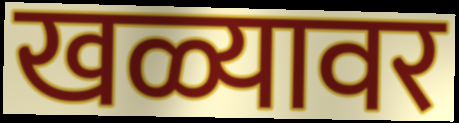
खळ्यावर